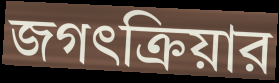
জগৎক্রিয়ার